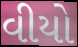
વીયો